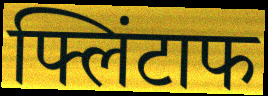
फ्लिंटाफ